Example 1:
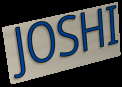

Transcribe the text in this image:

JOSHI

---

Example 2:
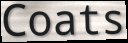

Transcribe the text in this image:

Coats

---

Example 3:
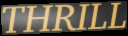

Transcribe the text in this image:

THRILL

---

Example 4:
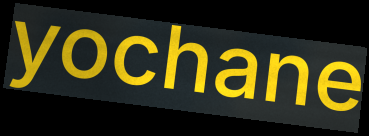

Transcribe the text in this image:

yochane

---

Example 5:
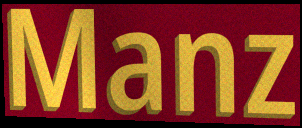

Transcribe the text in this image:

Manz